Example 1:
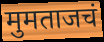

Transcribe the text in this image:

मुमताजचं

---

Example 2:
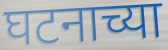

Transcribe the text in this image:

घटनाच्या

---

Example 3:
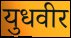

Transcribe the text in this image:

युधवीर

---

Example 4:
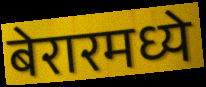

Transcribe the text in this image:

बेरारमध्ये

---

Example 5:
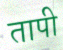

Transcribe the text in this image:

तापी